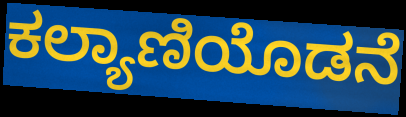
ಕಲ್ಯಾಣಿಯೊಡನೆ